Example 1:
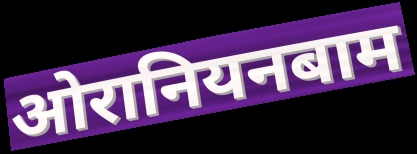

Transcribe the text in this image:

ओरानियनबाम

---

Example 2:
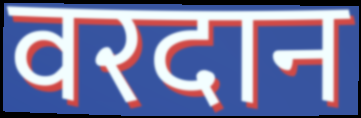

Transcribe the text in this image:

वरदान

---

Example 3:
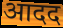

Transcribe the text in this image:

आदद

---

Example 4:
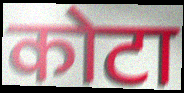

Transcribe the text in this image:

कोटा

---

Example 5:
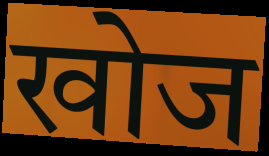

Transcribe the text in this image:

खोज